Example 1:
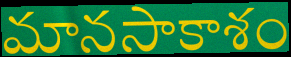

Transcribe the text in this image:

మానసాకాశం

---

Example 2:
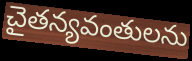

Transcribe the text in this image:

చైతన్యవంతులను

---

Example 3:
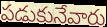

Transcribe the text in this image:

పడుకునేవారు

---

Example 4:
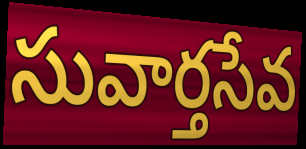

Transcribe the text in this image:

సువార్తసేవ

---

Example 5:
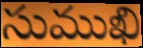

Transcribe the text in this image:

సుముఖి